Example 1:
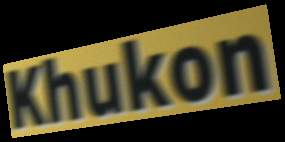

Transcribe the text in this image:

Khukon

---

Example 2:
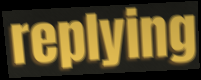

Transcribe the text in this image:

replying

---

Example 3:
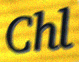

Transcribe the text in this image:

Chl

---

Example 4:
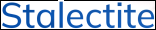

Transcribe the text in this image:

Stalectite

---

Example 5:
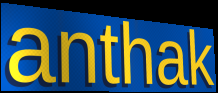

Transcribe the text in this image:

anthak